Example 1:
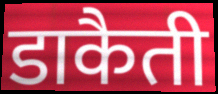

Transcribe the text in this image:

डाकैती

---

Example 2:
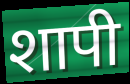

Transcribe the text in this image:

शापी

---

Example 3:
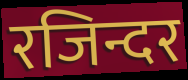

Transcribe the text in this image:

रजिन्दर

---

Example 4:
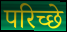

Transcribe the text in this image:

परिच्छे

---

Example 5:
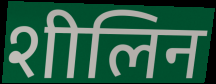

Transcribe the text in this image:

शीलिन